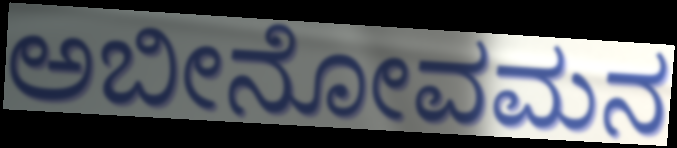
ಅಬೀನೋವಮನ